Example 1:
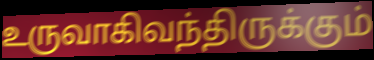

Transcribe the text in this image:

உருவாகிவந்திருக்கும்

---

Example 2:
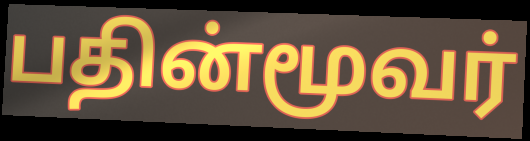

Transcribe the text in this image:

பதின்மூவர்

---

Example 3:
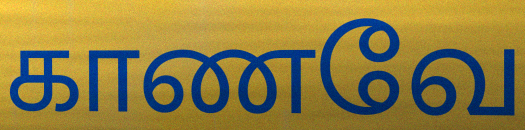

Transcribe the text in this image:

காணவே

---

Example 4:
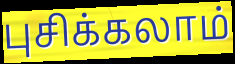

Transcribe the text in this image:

புசிக்கலாம்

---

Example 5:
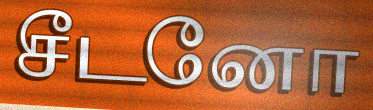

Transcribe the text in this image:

சீடனோ